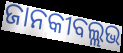
ଜାନକୀବଲ୍ଲଭ